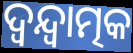
ଦ୍ଵନ୍ଦ୍ଵାତ୍ମକ